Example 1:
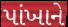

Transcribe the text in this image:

પાંખાને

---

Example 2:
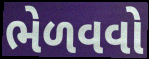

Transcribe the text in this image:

ભેળવવો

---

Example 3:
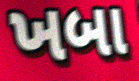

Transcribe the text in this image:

ખબા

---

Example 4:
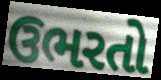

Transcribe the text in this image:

ઉભરતો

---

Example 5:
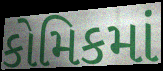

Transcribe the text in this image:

કોમિકમાં